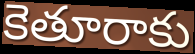
కెతూరాకు